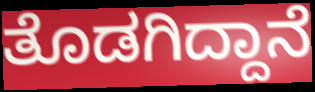
ತೊಡಗಿದ್ದಾನೆ